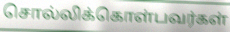
சொல்லிக்கொள்பவர்கள்